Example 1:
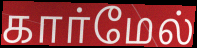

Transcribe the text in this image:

கார்மேல்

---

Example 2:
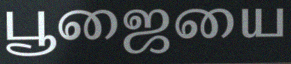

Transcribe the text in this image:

பூஜையை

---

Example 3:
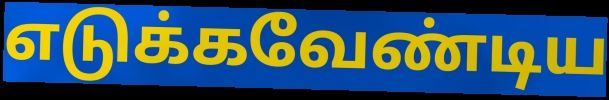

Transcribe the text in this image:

எடுக்கவேண்டிய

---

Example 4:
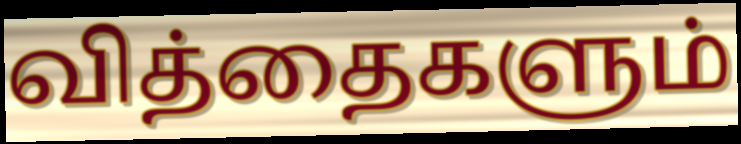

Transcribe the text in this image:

வித்தைகளும்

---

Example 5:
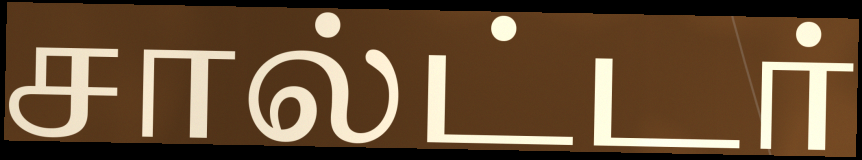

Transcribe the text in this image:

சால்ட்டர்